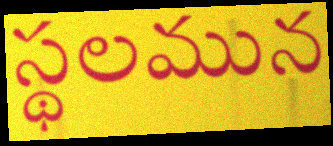
స్థలమున